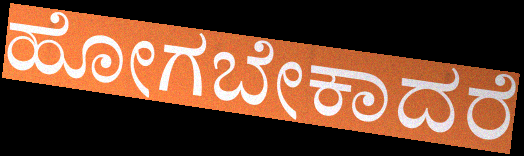
ಹೋಗಬೇಕಾದರೆ